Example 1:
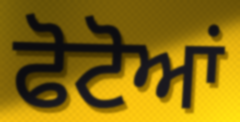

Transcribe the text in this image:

ਫੋਟੋਆਂ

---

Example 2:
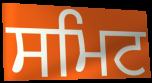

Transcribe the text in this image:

ਸਮਿਟ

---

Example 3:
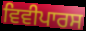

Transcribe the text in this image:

ਵਿਵੀਪਾਰਸ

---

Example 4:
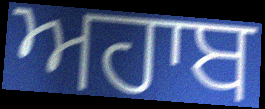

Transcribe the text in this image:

ਅਹਾਬ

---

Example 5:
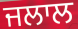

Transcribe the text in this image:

ਜਲਾਲ